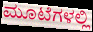
ಮೂಟೆಗಳಲ್ಲಿ